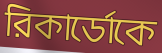
রিকার্ডোকে